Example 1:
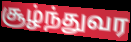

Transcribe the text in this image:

சூழ்ந்துவர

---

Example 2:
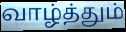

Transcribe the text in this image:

வாழ்த்தும்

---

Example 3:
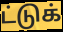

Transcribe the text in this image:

ட்டுக்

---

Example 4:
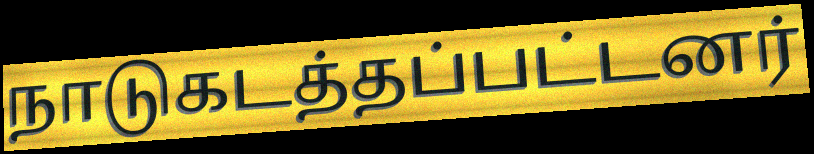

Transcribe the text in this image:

நாடுகடத்தப்பட்டனர்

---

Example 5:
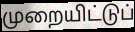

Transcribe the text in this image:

முறையிட்டுப்